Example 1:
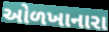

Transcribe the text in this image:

ઓળખાનારા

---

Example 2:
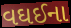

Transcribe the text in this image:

વઘઈના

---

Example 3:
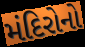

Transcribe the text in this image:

મંદિરોનો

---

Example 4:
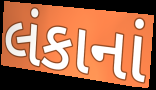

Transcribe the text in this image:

લંકાનાં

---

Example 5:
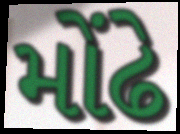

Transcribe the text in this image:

મોંઢે